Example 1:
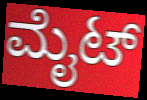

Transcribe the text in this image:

ಮೈಟ್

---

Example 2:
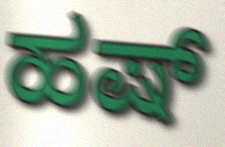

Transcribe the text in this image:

ಹಷ್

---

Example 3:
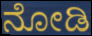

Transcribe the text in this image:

ನೋಡಿ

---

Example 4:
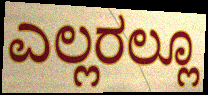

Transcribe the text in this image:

ಎಲ್ಲರಲ್ಲೂ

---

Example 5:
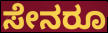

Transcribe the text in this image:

ಸೇನರೂ